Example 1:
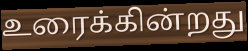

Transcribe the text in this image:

உரைக்கின்றது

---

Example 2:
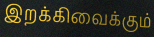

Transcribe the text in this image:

இறக்கிவைக்கும்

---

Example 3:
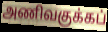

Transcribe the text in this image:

அணிவகுக்கப்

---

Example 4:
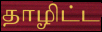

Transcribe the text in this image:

தாழிட்ட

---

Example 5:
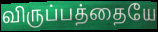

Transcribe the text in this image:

விருப்பத்தையே